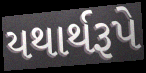
યથાર્થરૂપે